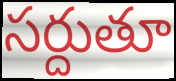
సర్దుతూ